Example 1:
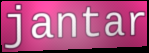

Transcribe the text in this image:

jantar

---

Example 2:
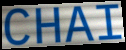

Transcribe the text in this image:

CHAI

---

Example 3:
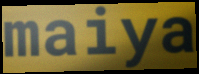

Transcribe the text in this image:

maiya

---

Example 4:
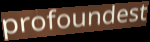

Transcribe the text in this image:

profoundest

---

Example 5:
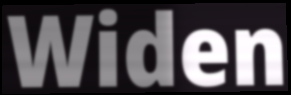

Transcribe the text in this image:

Widen